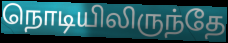
நொடியிலிருந்தே